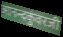
आनन्दकुंवरजी